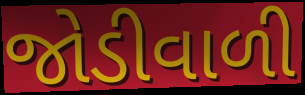
જોડીવાળી